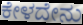
ಕೇಳದೇನು